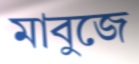
মাবুজে